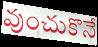
వుంచుకొనే